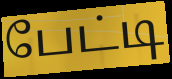
பேட்டி